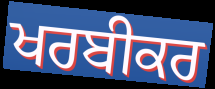
ਖਰਬੀਕਰ